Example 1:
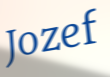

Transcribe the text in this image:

Jozef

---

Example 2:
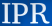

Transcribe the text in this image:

IPR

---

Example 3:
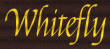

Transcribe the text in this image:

Whitefly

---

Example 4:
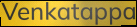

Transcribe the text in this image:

Venkatappa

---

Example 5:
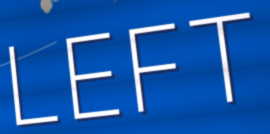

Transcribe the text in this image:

LEFT